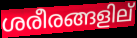
ശരീരങ്ങളില്